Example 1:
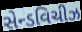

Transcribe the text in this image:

સેન્ડવિચીઝ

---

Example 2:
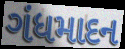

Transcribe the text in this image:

ગંધમાદન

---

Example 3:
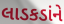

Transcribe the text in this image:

લાડકડાંને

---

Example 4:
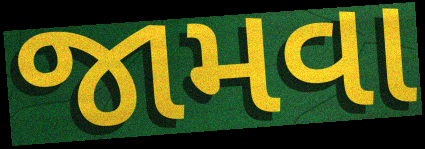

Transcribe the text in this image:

જામવા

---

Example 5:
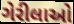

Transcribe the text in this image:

ગેરીલાઓ